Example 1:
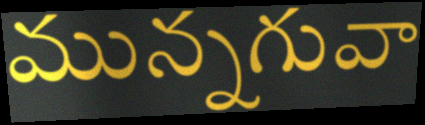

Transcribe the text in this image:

మున్నగువా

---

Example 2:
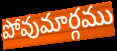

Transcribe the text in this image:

పోవుమార్గము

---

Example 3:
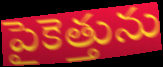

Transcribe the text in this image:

పైకెత్తును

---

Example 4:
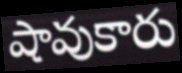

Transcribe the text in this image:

షావుకారు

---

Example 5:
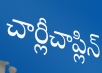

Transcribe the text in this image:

చార్లీచాప్లిన్